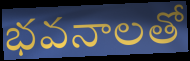
భవనాలతో